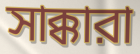
সাক্কারা